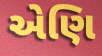
એણિ